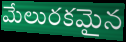
మేలురకమైన